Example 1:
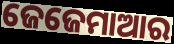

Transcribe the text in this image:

ଜେଜେମାଆର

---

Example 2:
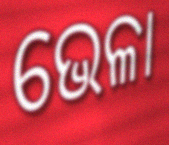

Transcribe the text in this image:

ଭେଳା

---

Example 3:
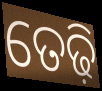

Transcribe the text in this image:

ତେଢ଼ି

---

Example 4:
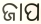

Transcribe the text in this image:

ଜାପ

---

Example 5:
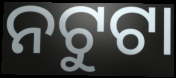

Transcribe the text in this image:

ନଟୁଟା